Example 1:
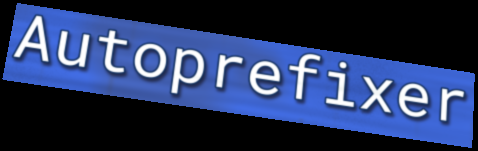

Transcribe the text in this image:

Autoprefixer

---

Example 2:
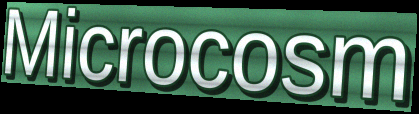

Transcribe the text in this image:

Microcosm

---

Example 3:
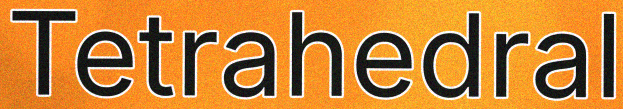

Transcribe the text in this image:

Tetrahedral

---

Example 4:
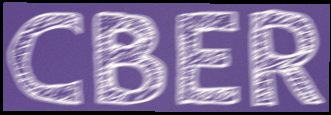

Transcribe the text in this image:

CBER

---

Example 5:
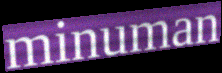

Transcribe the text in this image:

minuman